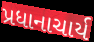
પ્રધાનાચાર્ય